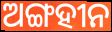
ଅଙ୍ଗହୀନ